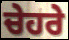
ਚੇਹਰੇ